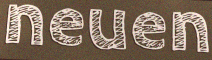
neuen